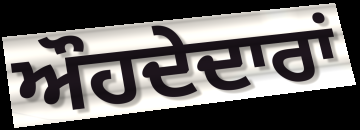
ਔਹਦੇਦਾਰਾਂ